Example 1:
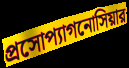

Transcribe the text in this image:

প্রসোপ্যাগনোসিয়ার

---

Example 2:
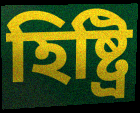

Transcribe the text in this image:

হিষ্ট্রি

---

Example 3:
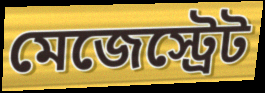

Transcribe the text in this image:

মেজেস্ট্রেট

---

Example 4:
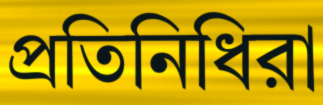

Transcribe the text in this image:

প্রতিনিধিরা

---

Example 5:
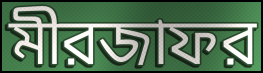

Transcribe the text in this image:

মীরজাফর